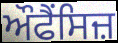
ਔਫੈਂਸਿਜ਼